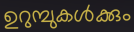
ഉറുമ്പുകൾക്കും